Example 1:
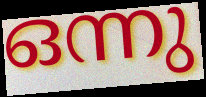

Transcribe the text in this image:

ഒന്നു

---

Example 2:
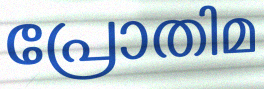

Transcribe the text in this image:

പ്രോതിമ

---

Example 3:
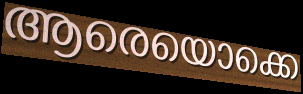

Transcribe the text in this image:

ആരെയൊക്കെ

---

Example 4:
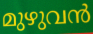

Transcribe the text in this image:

മുഴുവൻ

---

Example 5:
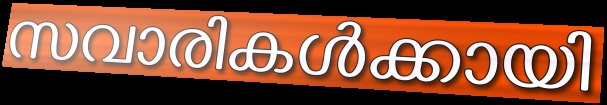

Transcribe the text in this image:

സവാരികൾക്കായി